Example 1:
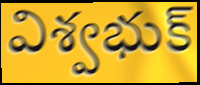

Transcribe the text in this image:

విశ్వభుక్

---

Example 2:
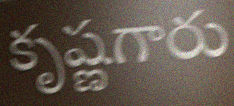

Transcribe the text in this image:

కృష్ణగారు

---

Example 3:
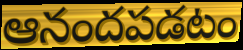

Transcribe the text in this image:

ఆనందపడటం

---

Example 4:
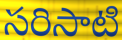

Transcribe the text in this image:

సరిసాటి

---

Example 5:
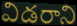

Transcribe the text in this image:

విడరాని